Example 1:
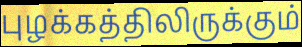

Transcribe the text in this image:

புழக்கத்திலிருக்கும்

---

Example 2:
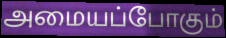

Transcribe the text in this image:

அமையப்போகும்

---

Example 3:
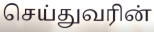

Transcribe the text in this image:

செய்துவரின்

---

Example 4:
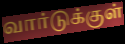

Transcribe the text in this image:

வார்டுக்குள்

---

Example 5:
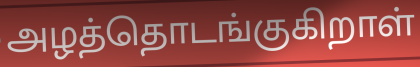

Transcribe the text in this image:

அழத்தொடங்குகிறாள்